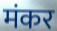
मंकर